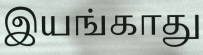
இயங்காது